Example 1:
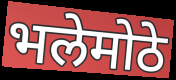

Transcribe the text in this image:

भलेमोठे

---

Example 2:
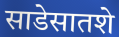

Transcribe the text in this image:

साडेसातशे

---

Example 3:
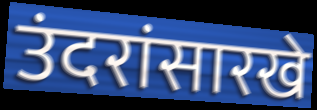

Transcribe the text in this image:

उंदरांसारखे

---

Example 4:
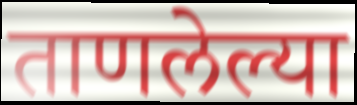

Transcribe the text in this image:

ताणलेल्या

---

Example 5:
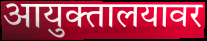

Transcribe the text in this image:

आयुक्तालयावर